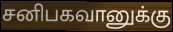
சனிபகவானுக்கு